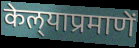
केल्याप्रमाणें